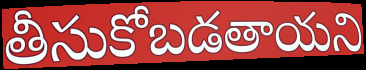
తీసుకోబడతాయని